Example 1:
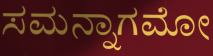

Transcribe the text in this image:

ಸಮನ್ನಾಗಮೋ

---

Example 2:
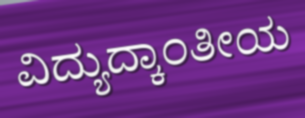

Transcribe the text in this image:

ವಿದ್ಯುದ್ಕಾಂತೀಯ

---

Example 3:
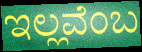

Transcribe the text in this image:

ಇಲ್ಲವೆಂಬ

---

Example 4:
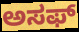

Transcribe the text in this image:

ಅಸಫ್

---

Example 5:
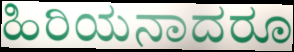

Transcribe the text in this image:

ಹಿರಿಯನಾದರೂ